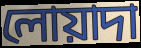
লোয়াদা